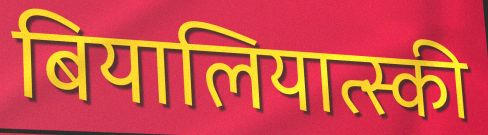
बियालियात्स्की